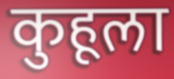
कुहूला